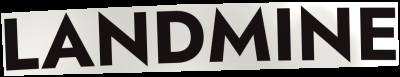
LANDMINE